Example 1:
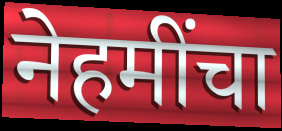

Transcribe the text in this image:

नेहमींचा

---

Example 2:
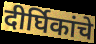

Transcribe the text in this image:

दीर्घिकांचे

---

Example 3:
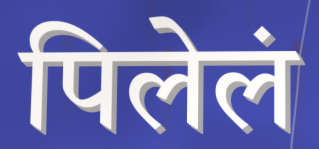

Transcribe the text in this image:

पिलेलं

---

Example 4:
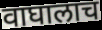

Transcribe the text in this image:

वाघालाच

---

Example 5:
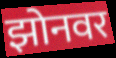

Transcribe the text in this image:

झोनवर